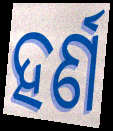
ହର୍ଣ